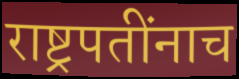
राष्ट्रपतींनाच